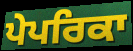
ਪੇਪਰਿਕਾ